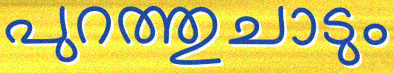
പുറത്തുചാടും